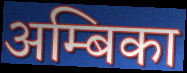
अम्बिका